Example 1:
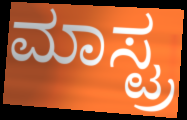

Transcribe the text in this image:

ಮಾಸ್ಟ್ರ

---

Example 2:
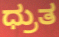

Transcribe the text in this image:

ಧ್ರುತ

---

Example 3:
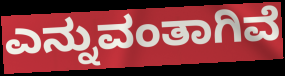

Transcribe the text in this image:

ಎನ್ನುವಂತಾಗಿವೆ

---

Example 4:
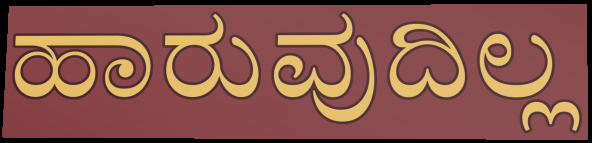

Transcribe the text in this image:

ಹಾರುವುದಿಲ್ಲ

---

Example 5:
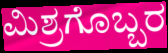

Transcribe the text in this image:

ಮಿಶ್ರಗೊಬ್ಬರ